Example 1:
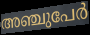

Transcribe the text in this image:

അഞ്ചുപേർ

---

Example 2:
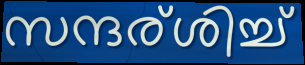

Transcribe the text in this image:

സന്ദര്ശിച്ച്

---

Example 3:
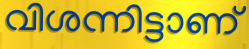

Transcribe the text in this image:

വിശന്നിട്ടാണ്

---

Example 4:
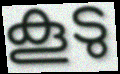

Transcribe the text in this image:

കൂടു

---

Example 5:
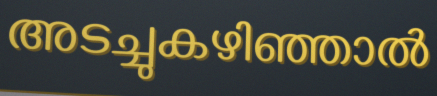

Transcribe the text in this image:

അടച്ചുകഴിഞ്ഞാൽ